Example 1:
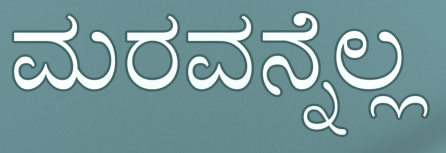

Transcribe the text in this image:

ಮರವನ್ನೆಲ್ಲ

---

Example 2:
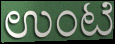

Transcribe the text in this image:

ಉಂಟೆ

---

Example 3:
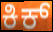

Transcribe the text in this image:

ಕಿಕ್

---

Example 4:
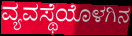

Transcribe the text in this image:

ವ್ಯವಸ್ಥೆಯೊಳಗಿನ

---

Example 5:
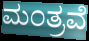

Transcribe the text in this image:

ಮಂತ್ರವೆ